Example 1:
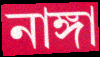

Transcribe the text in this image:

নাঙ্গা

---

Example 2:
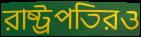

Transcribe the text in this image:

রাষ্ট্রপতিরও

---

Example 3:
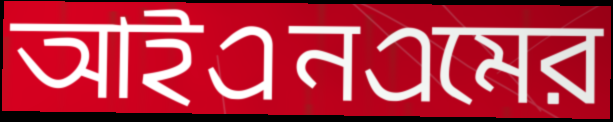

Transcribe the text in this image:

আইএনএমের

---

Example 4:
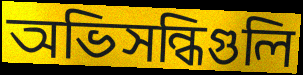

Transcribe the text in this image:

অভিসন্ধিগুলি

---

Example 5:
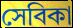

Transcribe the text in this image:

সেবিকা